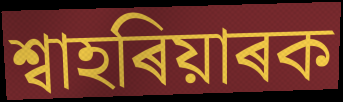
শ্বাহৰিয়াৰক